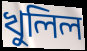
খুলিল